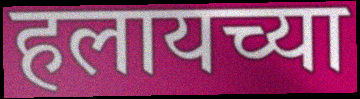
हलायच्या